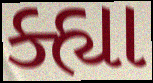
ક્હ્યા